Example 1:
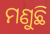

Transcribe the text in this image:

ମଣୁଛି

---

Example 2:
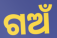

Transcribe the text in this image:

ଗଅଁ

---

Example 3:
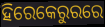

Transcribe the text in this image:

ହିରେକେରୁରରେ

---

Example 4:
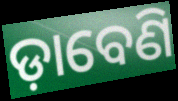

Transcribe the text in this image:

ଡ଼ାବେଣି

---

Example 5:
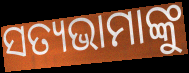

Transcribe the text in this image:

ସତ୍ୟଭାମାଙ୍କୁ